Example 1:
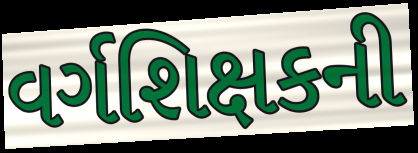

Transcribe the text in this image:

વર્ગશિક્ષકની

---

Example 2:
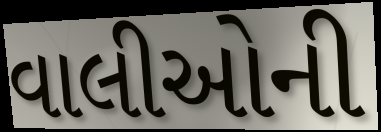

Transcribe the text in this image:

વાલીઓની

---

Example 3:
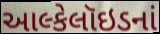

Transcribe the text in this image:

આલ્કેલૉઇડનાં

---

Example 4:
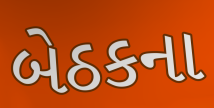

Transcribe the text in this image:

બેઠકના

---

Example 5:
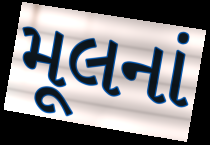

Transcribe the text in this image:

મૂલનાં